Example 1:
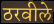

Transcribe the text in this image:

ठरवीले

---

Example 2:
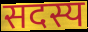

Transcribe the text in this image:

सदस्‍य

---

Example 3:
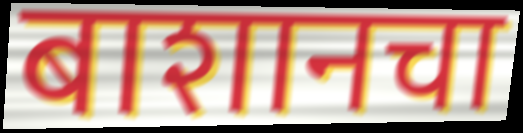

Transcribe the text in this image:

बाशानचा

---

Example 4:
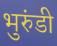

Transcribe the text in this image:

भुरुंडी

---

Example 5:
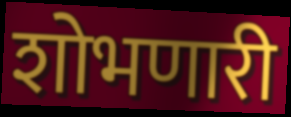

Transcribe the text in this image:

शोभणारी